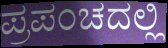
ಪ್ರಪಂಚದಲ್ಲಿ